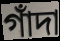
গাঁদা